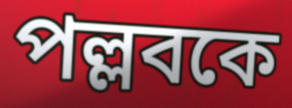
পল্লবকে